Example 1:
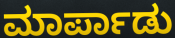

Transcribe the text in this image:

ಮಾರ್ಪಾಡು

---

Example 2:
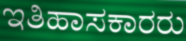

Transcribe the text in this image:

ಇತಿಹಾಸಕಾರರು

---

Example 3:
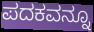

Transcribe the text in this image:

ಪದಕವನ್ನೂ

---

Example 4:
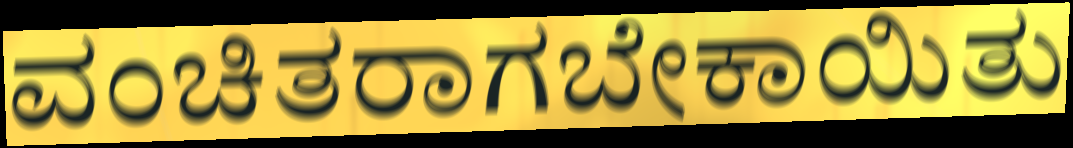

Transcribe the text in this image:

ವಂಚಿತರಾಗಬೇಕಾಯಿತು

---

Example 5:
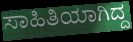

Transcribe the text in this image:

ಸಾಹಿತಿಯಾಗಿದ್ದ